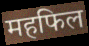
महफिल